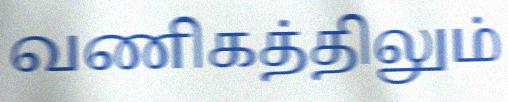
வணிகத்திலும்